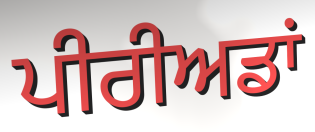
ਪੀਰੀਅਡਾਂ